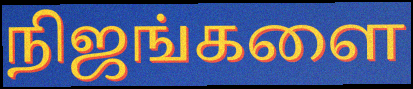
நிஜங்களை